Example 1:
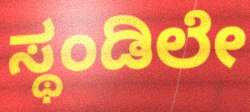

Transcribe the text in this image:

ಸ್ಥಂಡಿಲೇ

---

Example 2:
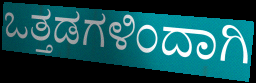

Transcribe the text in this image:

ಒತ್ತಡಗಳಿಂದಾಗಿ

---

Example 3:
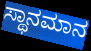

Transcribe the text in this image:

ಸ್ಥಾನಮಾನ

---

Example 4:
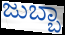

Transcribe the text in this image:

ಜುಬ್ಬಾ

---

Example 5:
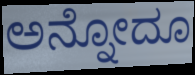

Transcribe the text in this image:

ಅನ್ನೋದೂ